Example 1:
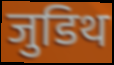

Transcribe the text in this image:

जुडिथ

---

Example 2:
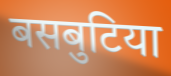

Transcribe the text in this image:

बसबुटिया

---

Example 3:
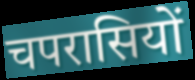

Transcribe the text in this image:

चपरासियों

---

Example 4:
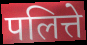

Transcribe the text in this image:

पलित्ते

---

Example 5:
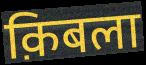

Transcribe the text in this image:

क़िबला